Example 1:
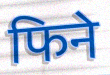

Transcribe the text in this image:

फिने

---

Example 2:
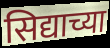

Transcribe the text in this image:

सिद्याच्या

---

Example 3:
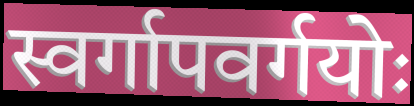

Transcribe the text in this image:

स्वर्गापवर्गयोः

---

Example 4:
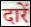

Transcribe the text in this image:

दारें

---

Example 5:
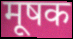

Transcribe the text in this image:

मूषक